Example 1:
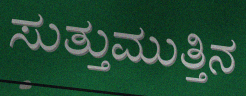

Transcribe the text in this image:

ಸುತ್ತುಮುತ್ತಿನ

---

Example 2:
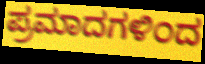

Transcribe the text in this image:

ಪ್ರಮಾದಗಳಿಂದ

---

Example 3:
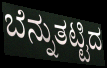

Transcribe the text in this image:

ಬೆನ್ನುತಟ್ಟಿದ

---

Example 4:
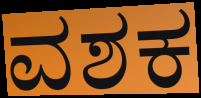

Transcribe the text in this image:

ವಶಕ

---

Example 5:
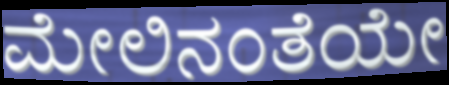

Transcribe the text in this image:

ಮೇಲಿನಂತೆಯೇ